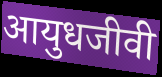
आयुधजीवी